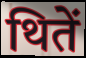
थितें